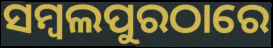
ସମ୍ବଲପୁରଠାରେ